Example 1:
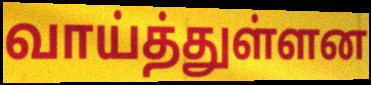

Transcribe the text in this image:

வாய்த்துள்ளன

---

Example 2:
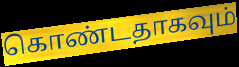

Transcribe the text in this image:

கொண்டதாகவும்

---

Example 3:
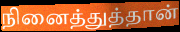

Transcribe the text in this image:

நினைத்துத்தான்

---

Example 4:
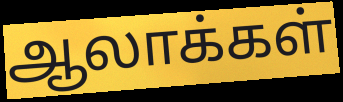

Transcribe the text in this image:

ஆலாக்கள்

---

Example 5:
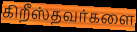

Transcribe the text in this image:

கிறீஸ்தவர்களை